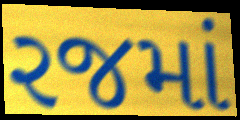
રજમાં